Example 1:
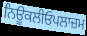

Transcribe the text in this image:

ਨਿਊਕਲੀਓਪਲਾਜ਼ਮ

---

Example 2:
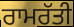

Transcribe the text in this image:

ਰਾਮਰੱਤੀ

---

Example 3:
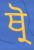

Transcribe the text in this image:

ਥ੍ਰੋ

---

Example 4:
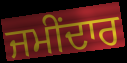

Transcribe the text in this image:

ਜਮੀਂਦਾਰ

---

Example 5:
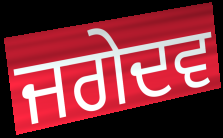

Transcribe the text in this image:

ਜਗੇਦਵ